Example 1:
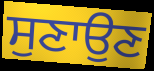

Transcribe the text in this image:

ਸੁਣਾਉਣ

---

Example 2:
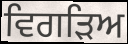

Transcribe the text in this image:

ਵਿਗੜਿਅ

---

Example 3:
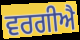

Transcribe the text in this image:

ਵਰਗੀਐ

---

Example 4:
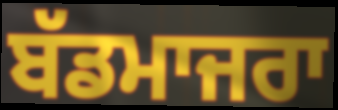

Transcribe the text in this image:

ਬੱਡਮਾਜਰਾ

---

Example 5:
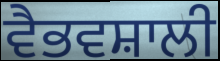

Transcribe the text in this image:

ਵੈਭਵਸ਼ਾਲੀ